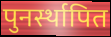
पुनर्स्थापित